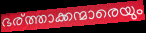
ഭര്ത്താക്കന്മാരെയും